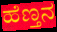
ಹೆಣ್ತನ